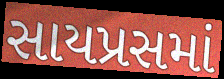
સાયપ્રસમાં